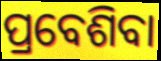
ପ୍ରବେଶିବା